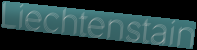
Liechtenstain